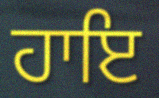
ਹਾਇ